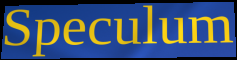
Speculum